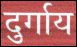
दुर्गाय